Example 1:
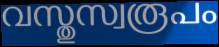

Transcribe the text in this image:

വസ്തുസ്വരൂപം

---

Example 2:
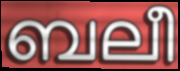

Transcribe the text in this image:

ബലീ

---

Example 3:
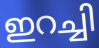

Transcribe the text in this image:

ഇറച്ചി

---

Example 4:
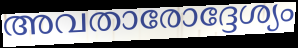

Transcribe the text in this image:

അവതാരോദ്ദേശ്യം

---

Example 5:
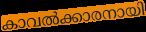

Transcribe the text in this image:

കാവൽക്കാരനായി